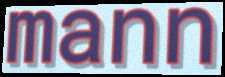
mann